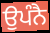
ਉਪੰਨੈ